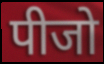
पीजो